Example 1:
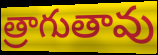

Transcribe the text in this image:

త్రాగుతావు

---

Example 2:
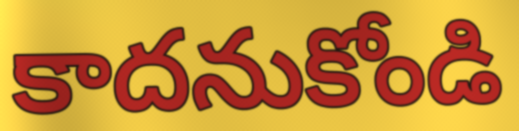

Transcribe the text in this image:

కాదనుకోండి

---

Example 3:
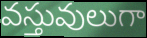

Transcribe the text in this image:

వస్తువులుగా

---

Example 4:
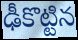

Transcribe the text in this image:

ఢీకొట్టిన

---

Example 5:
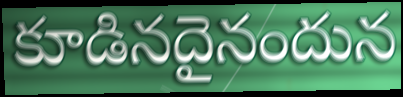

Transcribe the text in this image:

కూడినదైనందున